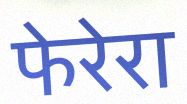
फेरेरा